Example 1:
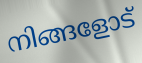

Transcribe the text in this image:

നിങ്ങളോട്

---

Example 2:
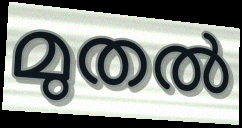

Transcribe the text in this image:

മുതൽ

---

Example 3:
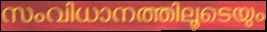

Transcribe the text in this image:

സംവിധാനത്തിലൂടെയും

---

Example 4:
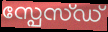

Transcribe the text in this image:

സ്പേസ്ഡ്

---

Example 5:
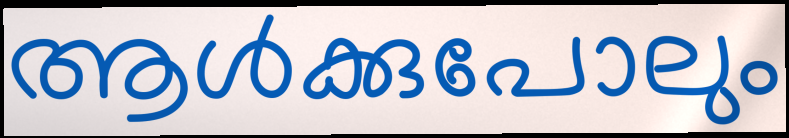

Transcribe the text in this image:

ആൾക്കുപോലും